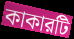
কাকারটি